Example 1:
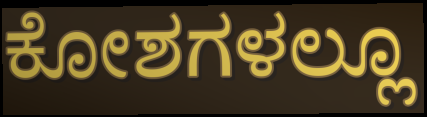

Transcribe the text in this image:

ಕೋಶಗಳಲ್ಲೂ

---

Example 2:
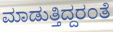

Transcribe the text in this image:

ಮಾಡುತ್ತಿದ್ದರಂತೆ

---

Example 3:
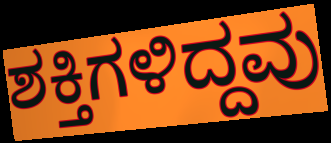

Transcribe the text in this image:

ಶಕ್ತಿಗಳಿದ್ದವು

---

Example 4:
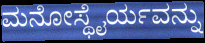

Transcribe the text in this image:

ಮನೋಸ್ಥೈರ್ಯವನ್ನು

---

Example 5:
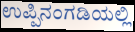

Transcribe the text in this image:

ಉಪ್ಪಿನಂಗಡಿಯಲ್ಲಿ